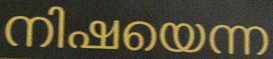
നിഷയെന്ന